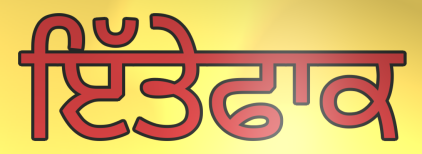
ਇੱਤੇਫਾਕ